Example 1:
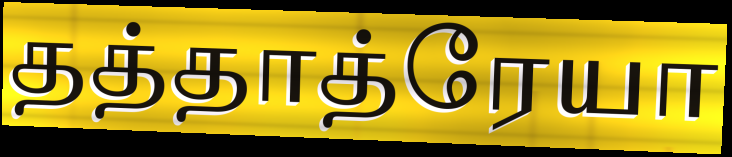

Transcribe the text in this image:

தத்தாத்ரேயா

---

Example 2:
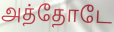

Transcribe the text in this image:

அத்தோடே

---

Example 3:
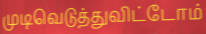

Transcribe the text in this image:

முடிவெடுத்துவிட்டோம்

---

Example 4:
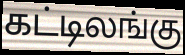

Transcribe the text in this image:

கட்டிலங்கு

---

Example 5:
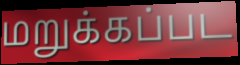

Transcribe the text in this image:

மறுக்கப்பட